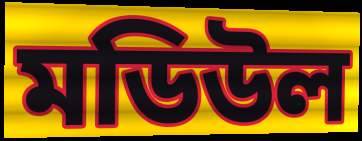
মডিউল